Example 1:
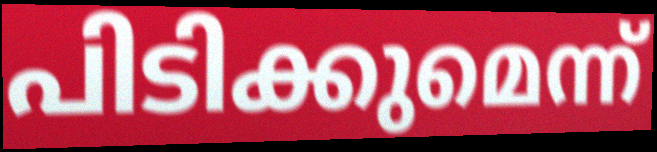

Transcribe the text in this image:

പിടിക്കുമെന്ന്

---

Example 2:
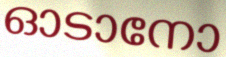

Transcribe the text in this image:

ഓടാനോ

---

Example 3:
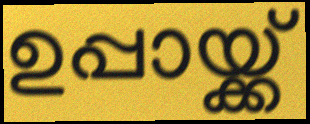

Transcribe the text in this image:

ഉപ്പായ്ക്ക്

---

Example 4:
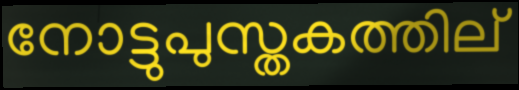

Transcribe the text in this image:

നോട്ടുപുസ്തകത്തില്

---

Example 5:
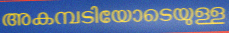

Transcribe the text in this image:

അകമ്പടിയോടെയുള്ള